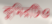
কুমিরটিও